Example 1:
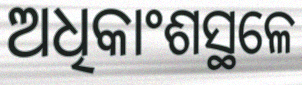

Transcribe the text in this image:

ଅଧିକାଂଶସ୍ଥଳେ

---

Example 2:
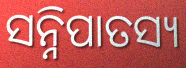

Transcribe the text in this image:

ସନ୍ନିପାତସ୍ୟ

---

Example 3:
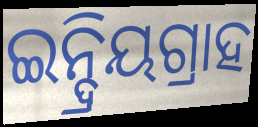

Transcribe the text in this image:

ଇନ୍ଦ୍ରିୟଗ୍ରାହ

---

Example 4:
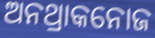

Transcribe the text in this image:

ଅନଥ୍ରାକନୋଜ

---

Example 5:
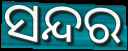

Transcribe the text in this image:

ସନ୍ଦର